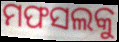
ମଫସଲକୁ